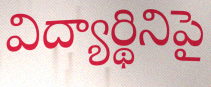
విద్యార్థినిపై